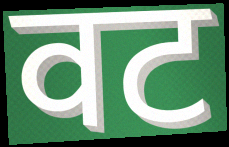
वट